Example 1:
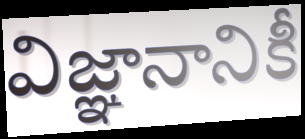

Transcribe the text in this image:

విజ్ఞానానికీ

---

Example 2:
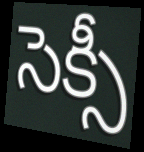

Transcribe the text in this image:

సెక్సీ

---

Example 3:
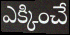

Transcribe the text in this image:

ఎక్కించే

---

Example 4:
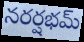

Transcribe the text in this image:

నరర్షభమ్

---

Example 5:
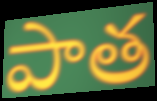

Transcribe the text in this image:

పాత